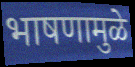
भाषणामुळे